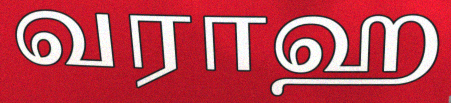
வராஹ